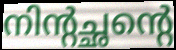
നിന്റച്ഛന്റെ